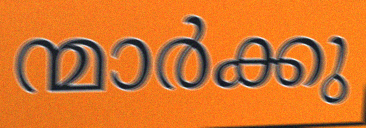
ന്മാർക്കു